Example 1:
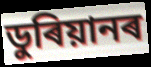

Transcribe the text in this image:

ডুৰিয়ানৰ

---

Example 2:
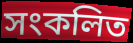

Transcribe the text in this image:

সংকলিত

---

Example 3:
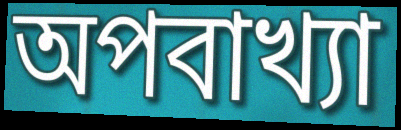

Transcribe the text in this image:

অপবাখ্যা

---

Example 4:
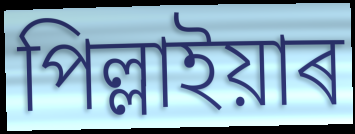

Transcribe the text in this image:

পিল্লাইয়াৰ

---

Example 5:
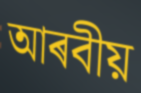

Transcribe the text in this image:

আৰবীয়